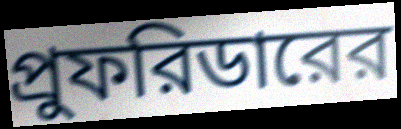
প্রুফরিডারের